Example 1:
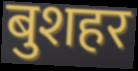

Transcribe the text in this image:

बुशहर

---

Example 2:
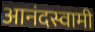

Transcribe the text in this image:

आनंदस्वामी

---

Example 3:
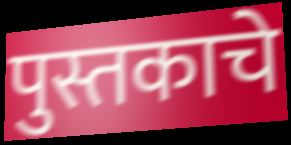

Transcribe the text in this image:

पुस्तकाचे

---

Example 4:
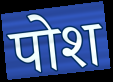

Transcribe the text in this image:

पोश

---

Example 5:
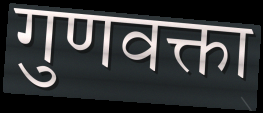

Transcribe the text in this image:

गुणवक्ता